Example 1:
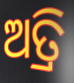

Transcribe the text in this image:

ଅତ୍ରି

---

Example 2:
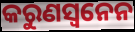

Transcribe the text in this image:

କରୁଣସ୍ଵନେନ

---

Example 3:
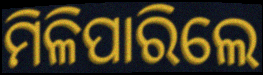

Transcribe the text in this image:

ମିଳିପାରିଲେ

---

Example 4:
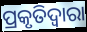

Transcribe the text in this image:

ପ୍ରକୃତିଦ୍ୱାରା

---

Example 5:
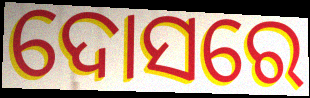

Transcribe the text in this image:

ଦୋସରେ